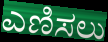
ಎಣಿಸಲು